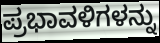
ಪ್ರಭಾವಳಿಗಳನ್ನು